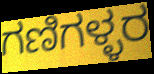
ಗಣಿಗಳ್ಳರ